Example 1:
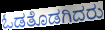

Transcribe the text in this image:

ಓಡತೊಡಗಿದರು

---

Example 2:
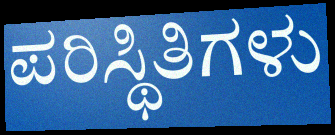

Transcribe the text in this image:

ಪರಿಸ್ಥಿತಿಗಳು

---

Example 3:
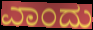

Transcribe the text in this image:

ಎಾಂದು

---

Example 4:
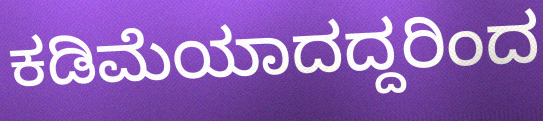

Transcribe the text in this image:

ಕಡಿಮೆಯಾದದ್ದರಿಂದ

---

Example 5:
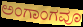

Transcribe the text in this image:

ಅಂಗಾಂಗವೂ